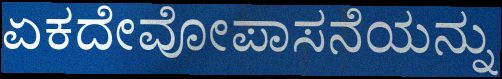
ಏಕದೇವೋಪಾಸನೆಯನ್ನು